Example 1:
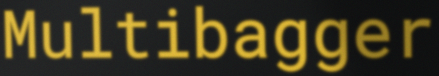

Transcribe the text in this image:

Multibagger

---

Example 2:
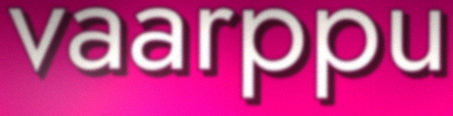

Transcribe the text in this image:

vaarppu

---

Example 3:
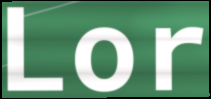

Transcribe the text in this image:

Lor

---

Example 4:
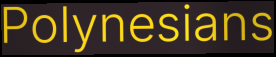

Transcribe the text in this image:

Polynesians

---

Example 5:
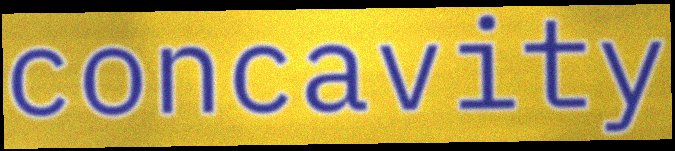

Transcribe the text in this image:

concavity